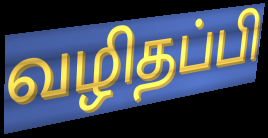
வழிதப்பி